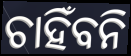
ଚାହିଁବନି